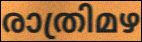
രാത്രിമഴ